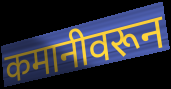
कमानीवरून